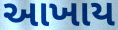
આખાય